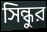
সিন্ধুর